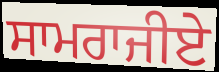
ਸਾਮਰਾਜੀਏ